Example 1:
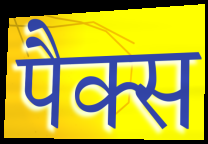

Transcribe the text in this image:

पैक्स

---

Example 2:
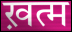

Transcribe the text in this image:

ख़त्म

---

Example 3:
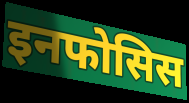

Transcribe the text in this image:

इनफोसिस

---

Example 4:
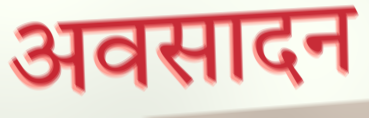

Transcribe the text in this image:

अवसादन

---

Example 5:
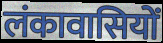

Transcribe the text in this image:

लंकावासियों